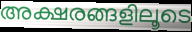
അക്ഷരങ്ങളിലൂടെ